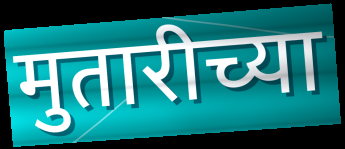
मुतारीच्या